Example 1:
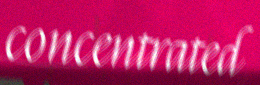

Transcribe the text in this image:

concentrated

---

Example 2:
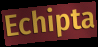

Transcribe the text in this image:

Echipta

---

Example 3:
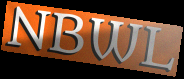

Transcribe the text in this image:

NBWL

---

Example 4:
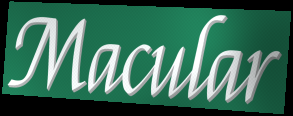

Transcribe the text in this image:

Macular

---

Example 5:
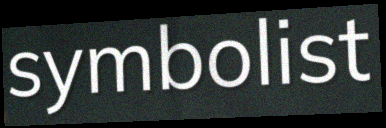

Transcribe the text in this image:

symbolist